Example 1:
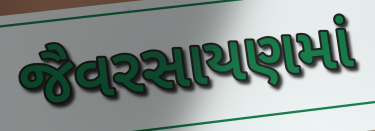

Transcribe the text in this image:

જૈવરસાયણમાં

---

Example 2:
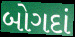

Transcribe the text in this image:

બોગદાં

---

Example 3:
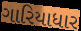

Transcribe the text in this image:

ગારિયાધાર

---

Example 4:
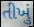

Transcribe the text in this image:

તીખું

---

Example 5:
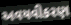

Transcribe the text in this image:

અવયવીકરણ